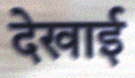
देखाई